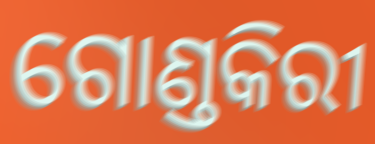
ଗୋଣ୍ଡକିରୀ